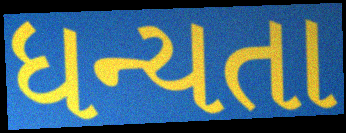
ધન્યતા